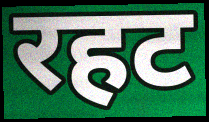
रहट